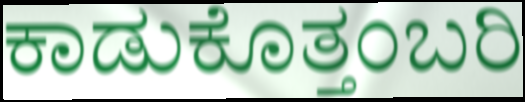
ಕಾಡುಕೊತ್ತಂಬರಿ